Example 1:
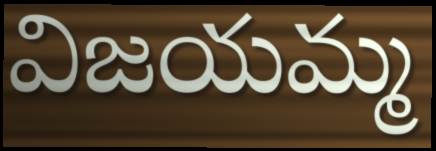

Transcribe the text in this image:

విజయమ్మ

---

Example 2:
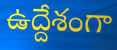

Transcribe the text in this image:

ఉద్దేశంగా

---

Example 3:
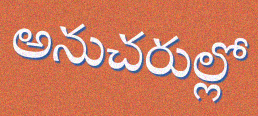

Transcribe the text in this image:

అనుచరుల్లో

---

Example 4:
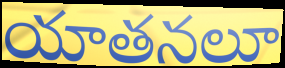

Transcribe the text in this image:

యాతనలూ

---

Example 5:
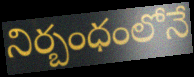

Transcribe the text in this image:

నిర్బంధంలోనే